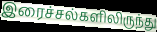
இரைச்சல்களிலிருந்து